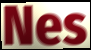
Nes